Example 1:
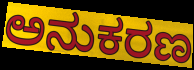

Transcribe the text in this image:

ಅನುಕರಣ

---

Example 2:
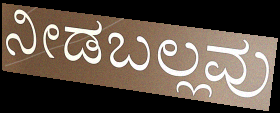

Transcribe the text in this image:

ನೀಡಬಲ್ಲವು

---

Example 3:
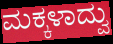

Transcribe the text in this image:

ಮಕ್ಕಳಾದ್ವು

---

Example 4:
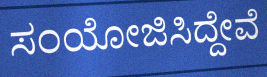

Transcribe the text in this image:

ಸಂಯೋಜಿಸಿದ್ದೇವೆ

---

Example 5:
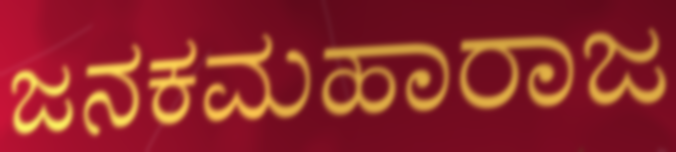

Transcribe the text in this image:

ಜನಕಮಹಾರಾಜ